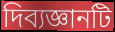
দিব্যজ্ঞানটি